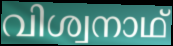
വിശ്വനാഥ്